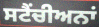
ਸਟੈਂਚੀਅਨਾਂ